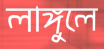
লাঙ্গুলে